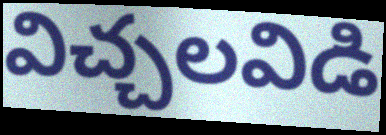
విచ్చలవిడి